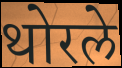
थोरले